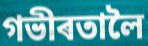
গভীৰতালৈ